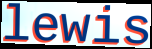
lewis